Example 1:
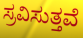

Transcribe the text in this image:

ಸ್ರವಿಸುತ್ತವೆ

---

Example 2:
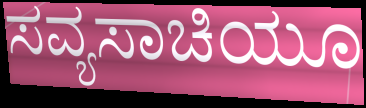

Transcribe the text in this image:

ಸವ್ಯಸಾಚಿಯೂ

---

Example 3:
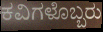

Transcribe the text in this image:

ಕವಿಗಳೊಬ್ಬರು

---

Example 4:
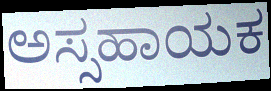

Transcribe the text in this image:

ಅಸ್ಸಹಾಯಕ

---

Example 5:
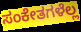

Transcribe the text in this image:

ಸಂಕೇತಗಳೆಲ್ಲ